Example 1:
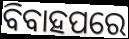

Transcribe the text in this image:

ବିବାହପରେ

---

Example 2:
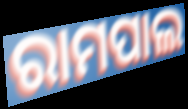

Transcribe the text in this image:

ରାମପାଲ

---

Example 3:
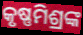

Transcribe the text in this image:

କୃଷ୍ଣମିଶ୍ରଙ୍କ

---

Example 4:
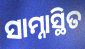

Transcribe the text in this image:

ସାମ୍ନାସ୍ଥିତ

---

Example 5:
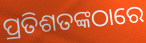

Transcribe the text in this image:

ପ୍ରତିଶତଙ୍କଠାରେ